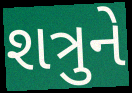
શત્રુને